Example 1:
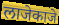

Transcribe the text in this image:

लाजेकाजे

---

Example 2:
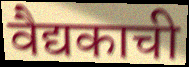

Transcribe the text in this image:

वैद्यकाची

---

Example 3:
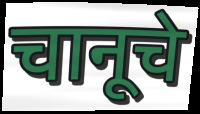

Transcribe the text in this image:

चानूचे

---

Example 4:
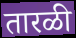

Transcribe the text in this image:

तारळी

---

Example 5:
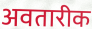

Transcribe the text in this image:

अवतारीक